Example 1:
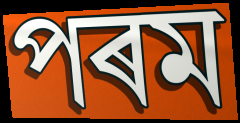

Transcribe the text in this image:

পৰম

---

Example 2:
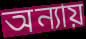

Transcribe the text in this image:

অন্যায়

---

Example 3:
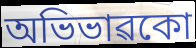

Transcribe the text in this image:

অভিভাৱকো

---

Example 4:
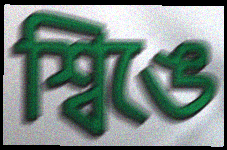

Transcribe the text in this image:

শ্বিঙে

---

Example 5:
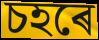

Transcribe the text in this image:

চহৰে